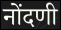
नोंदणी